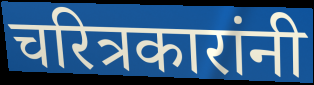
चरित्रकारांनी